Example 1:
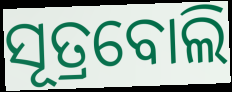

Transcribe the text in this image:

ସୂତ୍ରବୋଲି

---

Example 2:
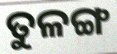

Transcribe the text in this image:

ତୁଳଙ୍ଗ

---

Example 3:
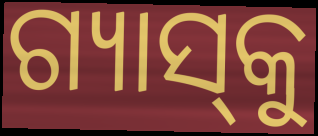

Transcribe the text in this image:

ଗ୍ୟାସ୍‌କୁ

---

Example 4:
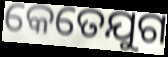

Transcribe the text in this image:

କେତେଯୁଗ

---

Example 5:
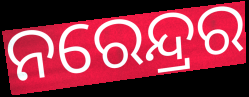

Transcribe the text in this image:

ନରେନ୍ଦ୍ରର